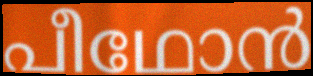
പീഥോൻ